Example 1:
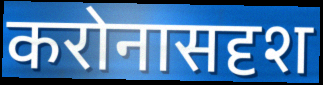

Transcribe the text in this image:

करोनासदृश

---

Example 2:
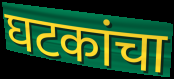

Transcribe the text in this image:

घटकांचा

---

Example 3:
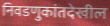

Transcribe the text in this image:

निवडणुकांतदेखील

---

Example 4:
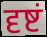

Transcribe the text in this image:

दृष्टं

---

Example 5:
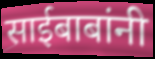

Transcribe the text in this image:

साईबाबांनी